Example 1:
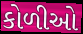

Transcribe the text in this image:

કોળીઓ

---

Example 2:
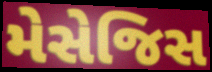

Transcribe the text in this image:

મેસેજિસ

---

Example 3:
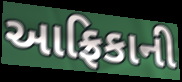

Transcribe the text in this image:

આફ્રિકાની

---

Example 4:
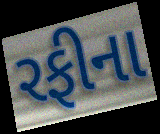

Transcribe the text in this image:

રફીના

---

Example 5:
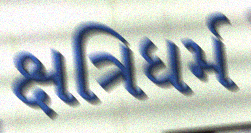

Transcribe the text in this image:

ક્ષત્રિધર્મ